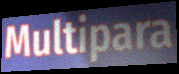
Multipara